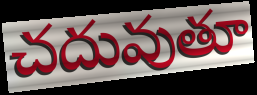
చదువుతూ